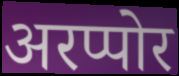
अरप्पोर